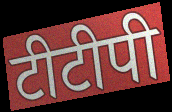
टीटीपी